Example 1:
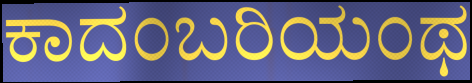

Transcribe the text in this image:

ಕಾದಂಬರಿಯಂಥ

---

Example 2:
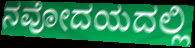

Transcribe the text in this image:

ನವೋದಯದಲ್ಲಿ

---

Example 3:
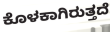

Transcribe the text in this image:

ಕೊಳಕಾಗಿರುತ್ತದೆ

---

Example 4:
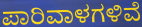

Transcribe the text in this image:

ಪಾರಿವಾಳಗಳಿವೆ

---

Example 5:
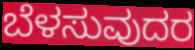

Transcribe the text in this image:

ಬೆಳಸುವುದರ